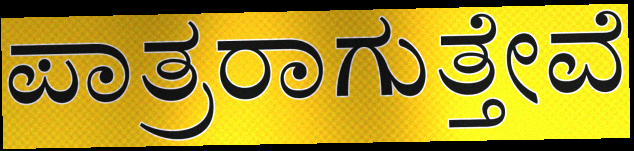
ಪಾತ್ರರಾಗುತ್ತೇವೆ